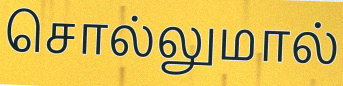
சொல்லுமால்